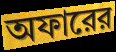
অফারের